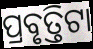
ପ୍ରବୃତ୍ତିଟା